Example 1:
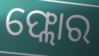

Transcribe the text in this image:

ଫ୍ଲୋର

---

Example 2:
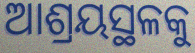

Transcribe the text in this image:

ଆଶ୍ରୟସ୍ଥଳକୁ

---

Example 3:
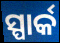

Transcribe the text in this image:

ସ୍ପାର୍କ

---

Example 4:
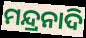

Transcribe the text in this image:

ମନ୍ଦ୍ରନାଦି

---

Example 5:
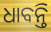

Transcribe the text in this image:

ଧାବନ୍ତି